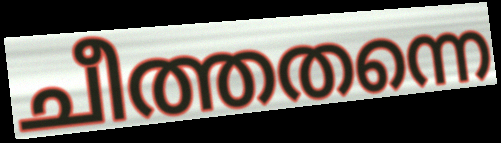
ചീത്തതന്നെ